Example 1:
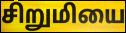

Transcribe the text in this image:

சிறுமியை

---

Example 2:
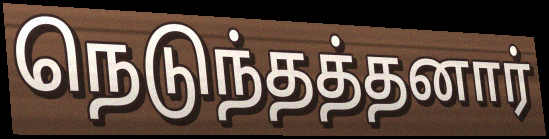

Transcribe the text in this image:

நெடுந்தத்தனார்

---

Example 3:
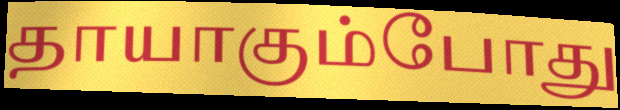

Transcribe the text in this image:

தாயாகும்போது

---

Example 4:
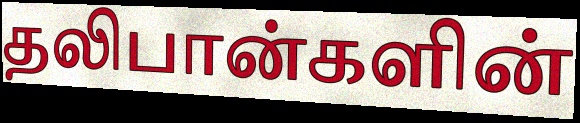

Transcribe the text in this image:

தலிபான்களின்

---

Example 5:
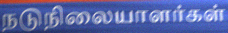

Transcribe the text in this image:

நடுநிலையாளர்கள்